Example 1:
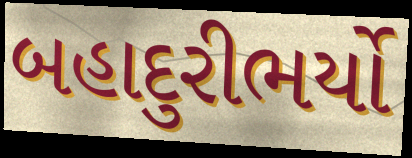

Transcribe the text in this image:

બહાદુરીભર્યો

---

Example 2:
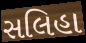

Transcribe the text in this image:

સલિહા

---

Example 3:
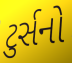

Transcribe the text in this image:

ટુર્સનો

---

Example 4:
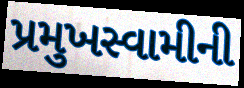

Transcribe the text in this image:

પ્રમુખસ્વામીની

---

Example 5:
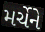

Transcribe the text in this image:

મર્ચેને